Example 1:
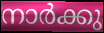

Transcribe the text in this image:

നാർക്കു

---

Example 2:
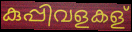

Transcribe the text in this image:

കുപ്പിവളകള്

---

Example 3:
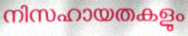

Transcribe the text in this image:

നിസഹായതകളും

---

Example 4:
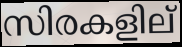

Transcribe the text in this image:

സിരകളില്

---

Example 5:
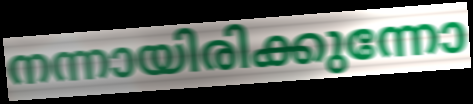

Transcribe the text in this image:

നന്നായിരിക്കുന്നോ